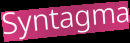
Syntagma